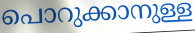
പൊറുക്കാനുള്ള